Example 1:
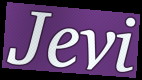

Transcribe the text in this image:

Jevi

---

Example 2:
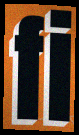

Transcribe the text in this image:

fi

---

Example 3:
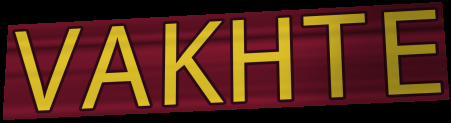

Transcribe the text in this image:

VAKHTE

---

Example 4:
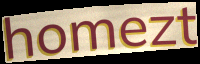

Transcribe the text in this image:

homezt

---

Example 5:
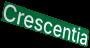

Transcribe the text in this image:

Crescentia